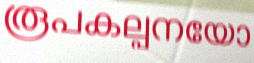
രൂപകല്പനയോ